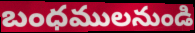
బంధములనుండి